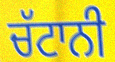
ਚੱਟਾਨੀ